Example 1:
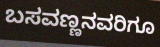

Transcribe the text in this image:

ಬಸವಣ್ಣನವರಿಗೂ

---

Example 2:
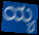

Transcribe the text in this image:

ಯ್ಯ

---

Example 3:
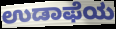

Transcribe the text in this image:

ಉಡಾಫೆಯ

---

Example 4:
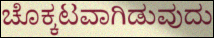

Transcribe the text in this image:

ಚೊಕ್ಕಟವಾಗಿಡುವುದು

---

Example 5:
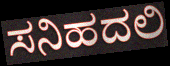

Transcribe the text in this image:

ಸನಿಹದಲಿ